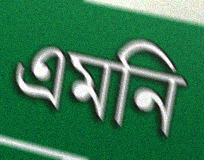
এমনি